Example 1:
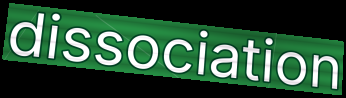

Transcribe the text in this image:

dissociation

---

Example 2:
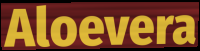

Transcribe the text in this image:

Aloevera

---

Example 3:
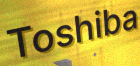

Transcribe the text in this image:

Toshiba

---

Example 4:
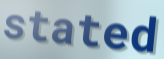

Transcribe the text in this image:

stated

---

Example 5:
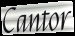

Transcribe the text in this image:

Cantor